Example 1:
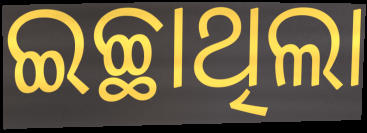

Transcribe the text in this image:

ଇଚ୍ଛାଥିଲା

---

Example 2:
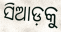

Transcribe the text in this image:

ସିଆଡ଼କୁ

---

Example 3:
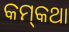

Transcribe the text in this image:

କମ୍‌କଥା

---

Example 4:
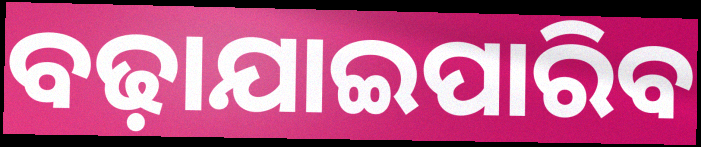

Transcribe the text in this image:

ବଢ଼ାଯାଇପାରିବ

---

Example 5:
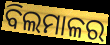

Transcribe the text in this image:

ବିଲମାଳର